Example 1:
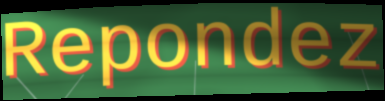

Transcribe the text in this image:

Repondez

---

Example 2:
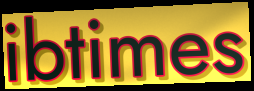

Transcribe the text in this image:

ibtimes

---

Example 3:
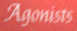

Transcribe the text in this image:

Agonists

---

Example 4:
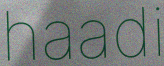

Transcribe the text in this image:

haadi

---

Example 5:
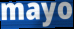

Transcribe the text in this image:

mayo